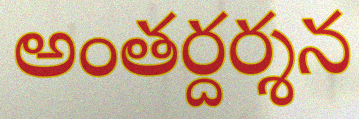
అంతర్దర్శన